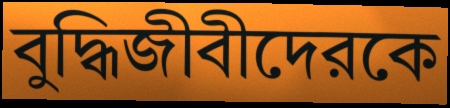
বুদ্ধিজীবীদেরকে